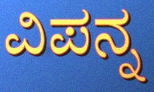
ವಿಪನ್ನ